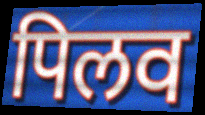
पिलव